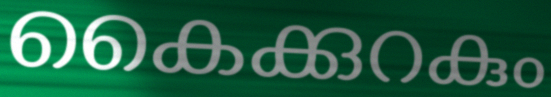
കൈക്കുറകും